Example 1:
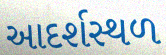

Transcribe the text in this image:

આદર્શસ્થળ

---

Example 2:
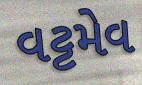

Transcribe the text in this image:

વટ્ટમેવ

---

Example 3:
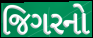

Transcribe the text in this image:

જિગરનો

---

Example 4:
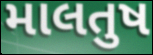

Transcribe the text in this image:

માલતુષ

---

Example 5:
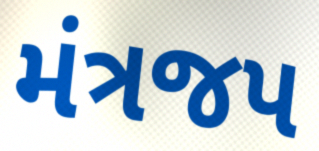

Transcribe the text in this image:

મંત્રજપ